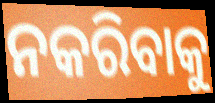
ନକରିବାକୁ